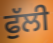
ਫੁੱਲੀ